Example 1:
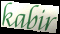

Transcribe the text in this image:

kabir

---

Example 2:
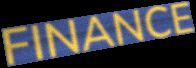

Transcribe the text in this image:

FINANCE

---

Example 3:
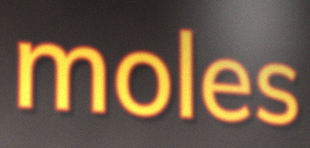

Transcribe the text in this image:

moles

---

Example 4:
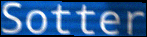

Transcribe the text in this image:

Sotter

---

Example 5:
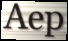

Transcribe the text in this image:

Aep